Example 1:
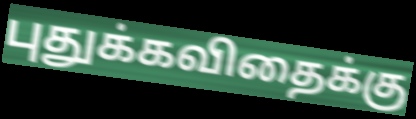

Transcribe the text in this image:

புதுக்கவிதைக்கு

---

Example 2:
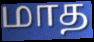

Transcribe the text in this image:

மாத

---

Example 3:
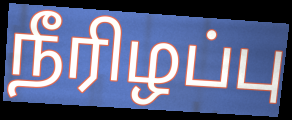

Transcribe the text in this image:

நீரிழப்பு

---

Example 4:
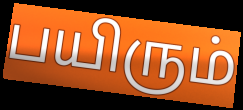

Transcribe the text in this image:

பயிரும்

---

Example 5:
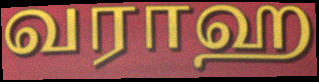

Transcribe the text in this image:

வராஹ